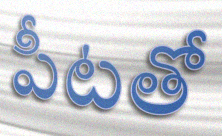
పీటతో